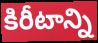
కిరీటాన్ని